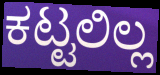
ಕಟ್ಟಲಿಲ್ಲ